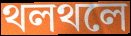
থলথলে